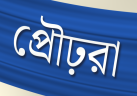
প্রৌঢ়রা